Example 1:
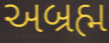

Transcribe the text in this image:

અબ્રહ્મ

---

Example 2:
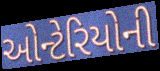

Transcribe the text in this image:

ઓન્ટેરિયોની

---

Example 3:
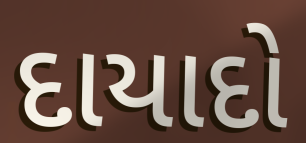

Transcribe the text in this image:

દાયાદો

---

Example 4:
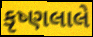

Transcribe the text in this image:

કૃષ્ણલાલે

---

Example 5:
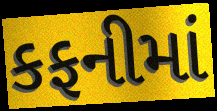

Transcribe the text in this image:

કફનીમાં